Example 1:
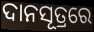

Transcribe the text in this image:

ଦାନସୂତ୍ରରେ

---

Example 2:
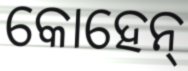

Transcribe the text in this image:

କୋହେନ୍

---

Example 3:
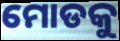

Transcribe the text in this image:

ମୋଡକୁ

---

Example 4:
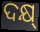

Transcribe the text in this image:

ଦକ୍ଷ୍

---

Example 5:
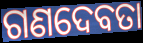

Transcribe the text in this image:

ଗଣଦେବତା